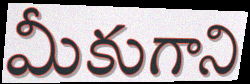
మీకుగాని